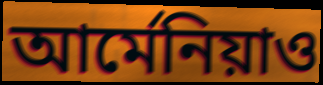
আর্মেনিয়াও